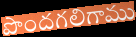
పొందగలిగాము